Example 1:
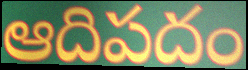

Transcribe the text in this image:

ఆదిపదం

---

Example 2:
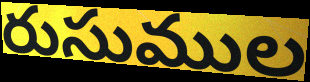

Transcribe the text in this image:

రుసుముల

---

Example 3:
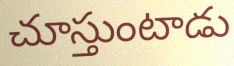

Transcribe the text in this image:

చూస్తుంటాడు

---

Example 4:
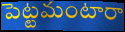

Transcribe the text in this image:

పెట్టమంటారా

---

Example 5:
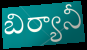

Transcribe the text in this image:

బిర్యానీ